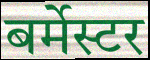
बर्मेस्टर